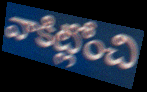
వాకిట్లోంచి